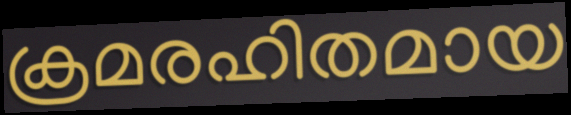
ക്രമരഹിതമായ